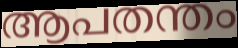
ആപതന്തം